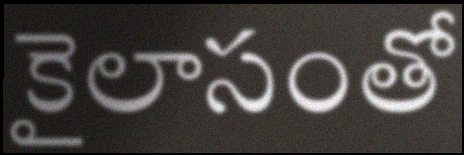
కైలాసంతో